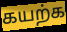
கயற்க